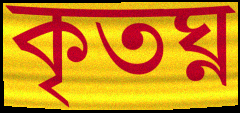
কৃতঘ্ন